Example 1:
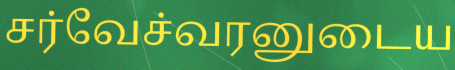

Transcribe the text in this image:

சர்வேச்வரனுடைய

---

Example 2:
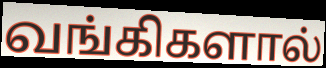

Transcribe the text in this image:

வங்கிகளால்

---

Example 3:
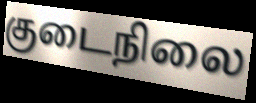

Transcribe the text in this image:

குடைநிலை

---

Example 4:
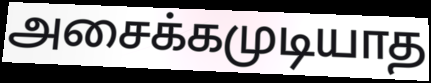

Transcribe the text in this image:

அசைக்கமுடியாத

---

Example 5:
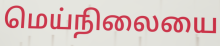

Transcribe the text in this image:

மெய்நிலையை